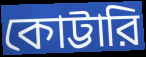
কোট্টারি